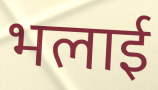
भलाई